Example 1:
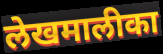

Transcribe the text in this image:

लेखमालीका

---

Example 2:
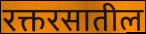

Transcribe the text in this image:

रक्तरसातील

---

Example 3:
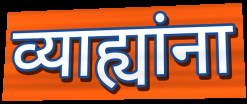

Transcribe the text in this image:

व्याह्यांना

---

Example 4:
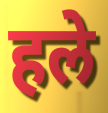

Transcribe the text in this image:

हले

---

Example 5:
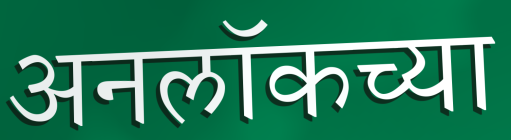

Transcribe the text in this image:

अनलॉकच्या